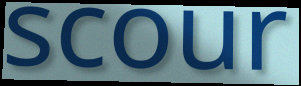
scour